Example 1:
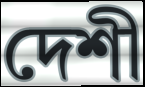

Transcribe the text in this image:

দেশী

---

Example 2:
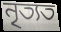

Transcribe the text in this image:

নৃত্যত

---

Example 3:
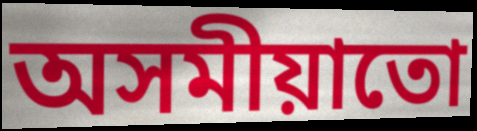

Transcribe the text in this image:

অসমীয়াতো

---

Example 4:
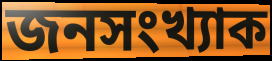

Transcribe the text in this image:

জনসংখ্যাক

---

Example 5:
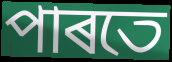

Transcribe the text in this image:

পাৰতে